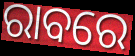
ରାବରେ